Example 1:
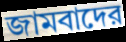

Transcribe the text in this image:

জামবাদের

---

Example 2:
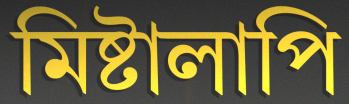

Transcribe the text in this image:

মিষ্টালাপি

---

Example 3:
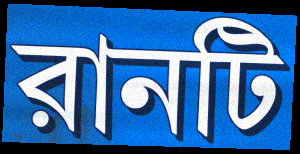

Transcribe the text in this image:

রানটি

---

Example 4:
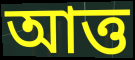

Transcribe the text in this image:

আত্ত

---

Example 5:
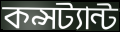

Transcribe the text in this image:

কন্সট্যান্ট